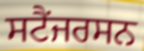
ਸਟੈਂਜਰਸਨ